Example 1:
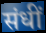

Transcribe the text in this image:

संधीं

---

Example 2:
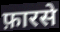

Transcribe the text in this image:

फ़ारसे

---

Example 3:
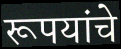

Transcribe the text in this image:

रूपयांचे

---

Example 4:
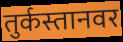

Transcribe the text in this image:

तुर्कस्तानवर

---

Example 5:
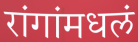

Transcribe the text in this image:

रांगांमधलं